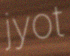
jyot